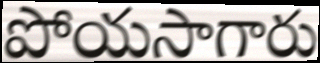
పోయసాగారు